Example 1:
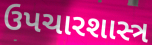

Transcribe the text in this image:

ઉપચારશાસ્ત્ર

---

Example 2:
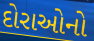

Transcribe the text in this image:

દોરાઓનો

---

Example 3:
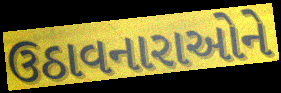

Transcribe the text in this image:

ઉઠાવનારાઓને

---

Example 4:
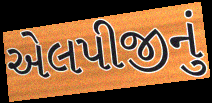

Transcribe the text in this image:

એલપીજીનું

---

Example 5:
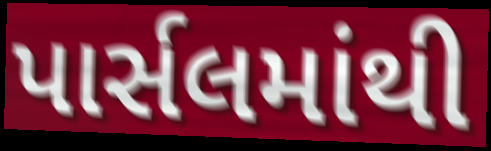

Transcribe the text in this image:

પાર્સલમાંથી